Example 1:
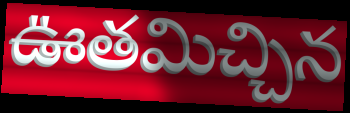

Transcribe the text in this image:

ఊతమిచ్చిన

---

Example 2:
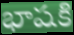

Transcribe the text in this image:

భాషకి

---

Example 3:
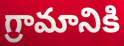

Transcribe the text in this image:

గ్రామానికి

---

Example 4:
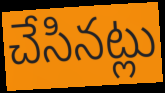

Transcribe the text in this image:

చేసినట్లు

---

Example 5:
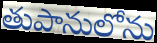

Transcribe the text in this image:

తుపానులోను